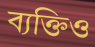
ব্যক্তিও